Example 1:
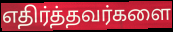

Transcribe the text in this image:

எதிர்த்தவர்களை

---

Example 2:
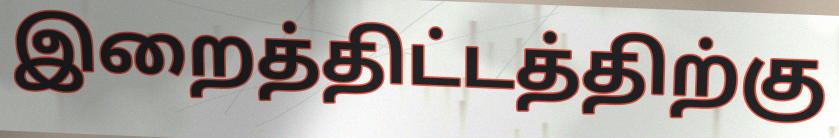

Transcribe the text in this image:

இறைத்திட்டத்திற்கு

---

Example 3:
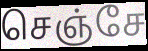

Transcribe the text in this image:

செஞ்சே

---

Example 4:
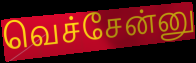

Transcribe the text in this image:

வெச்சேன்னு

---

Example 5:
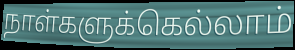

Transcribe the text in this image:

நாள்களுக்கெல்லாம்